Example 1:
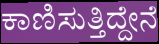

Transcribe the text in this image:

ಕಾಣಿಸುತ್ತಿದ್ದೇನೆ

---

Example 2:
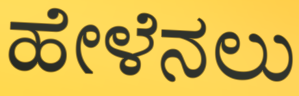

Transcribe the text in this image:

ಹೇಳೆನಲು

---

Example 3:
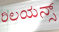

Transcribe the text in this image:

ರಿಲಯನ್ಸ್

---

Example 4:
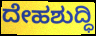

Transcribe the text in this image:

ದೇಹಶುದ್ಧಿ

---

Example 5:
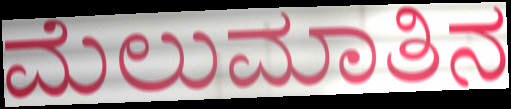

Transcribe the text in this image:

ಮೆಲುಮಾತಿನ